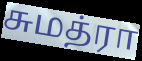
சுமத்ரா